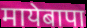
मायेबापा